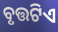
ବୃତ୍ତଟିଏ